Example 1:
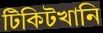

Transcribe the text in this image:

টিকিটখানি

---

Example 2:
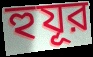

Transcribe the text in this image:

হুযূর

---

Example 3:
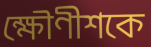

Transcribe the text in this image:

ক্ষৌণীশকে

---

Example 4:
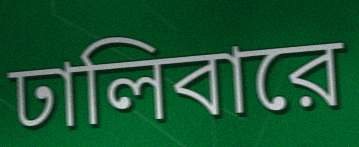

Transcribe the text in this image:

ঢালিবারে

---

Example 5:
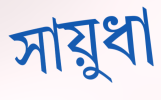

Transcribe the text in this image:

সায়ুধা